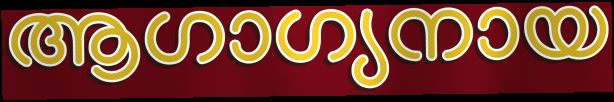
ആഗാഗ്യനായ